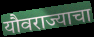
यौवराज्याचा